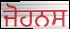
ਜੋਹਨਸ